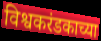
विश्वकरंडकाच्या